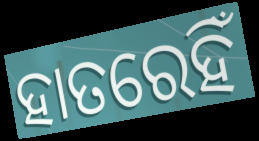
ହାତରେହିଁ